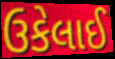
ઉકેલાઈ